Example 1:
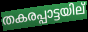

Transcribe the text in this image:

തകരപ്പാട്ടയില്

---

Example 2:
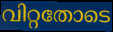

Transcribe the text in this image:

വിറ്റതോടെ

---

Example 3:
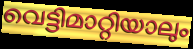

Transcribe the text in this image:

വെട്ടിമാറ്റിയാലും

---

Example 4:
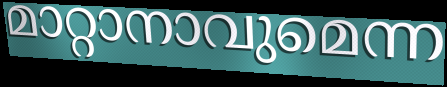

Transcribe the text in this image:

മാറ്റാനാവുമെന്ന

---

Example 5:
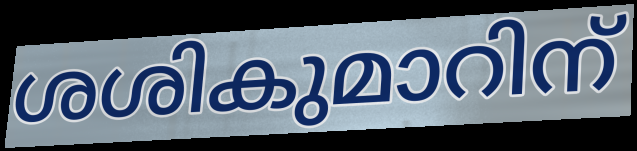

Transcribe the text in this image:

ശശികുമാറിന്